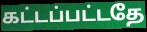
கட்டப்பட்டதே